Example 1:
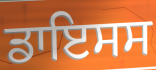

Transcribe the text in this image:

ਡਾਇਸਸ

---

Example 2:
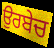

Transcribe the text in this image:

ਉਰਬੇਚ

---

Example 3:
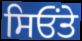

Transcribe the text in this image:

ਸਿਓਂਤੇ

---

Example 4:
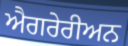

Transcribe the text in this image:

ਐਗਰੇਰੀਅਨ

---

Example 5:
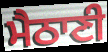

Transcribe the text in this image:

ਮੈਠਾਣੀ